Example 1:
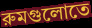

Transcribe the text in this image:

রুমগুলোতে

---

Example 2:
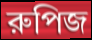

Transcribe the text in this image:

রুপিজ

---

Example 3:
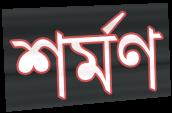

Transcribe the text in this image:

শর্মণ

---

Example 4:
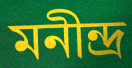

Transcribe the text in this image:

মনীন্দ্র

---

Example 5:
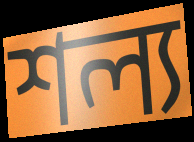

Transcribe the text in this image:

শল্য